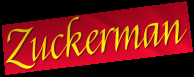
Zuckerman